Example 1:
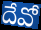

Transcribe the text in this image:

దేవో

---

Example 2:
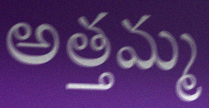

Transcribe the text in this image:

అత్తమ్మ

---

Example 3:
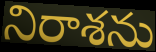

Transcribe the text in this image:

నిరాశను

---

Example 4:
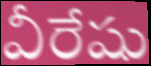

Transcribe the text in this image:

వీరేషు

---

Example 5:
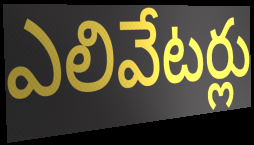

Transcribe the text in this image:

ఎలివేటర్లు